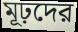
মূঢ়দের